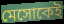
মেসোকেই